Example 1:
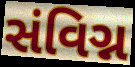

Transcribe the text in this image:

સંવિગ્ન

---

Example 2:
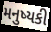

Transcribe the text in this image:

મનુષ્યકી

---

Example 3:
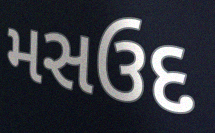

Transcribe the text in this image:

મસઉદ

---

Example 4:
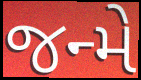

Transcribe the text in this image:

જન્મે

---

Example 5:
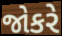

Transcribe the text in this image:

જોકરે